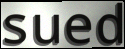
sued